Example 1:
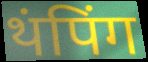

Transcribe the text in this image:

थंपिंग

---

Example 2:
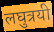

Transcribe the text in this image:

लघुत्रयी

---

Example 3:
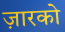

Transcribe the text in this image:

ज़ारको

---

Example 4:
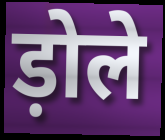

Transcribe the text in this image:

ड़ोले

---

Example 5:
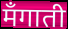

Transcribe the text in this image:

मँगाती